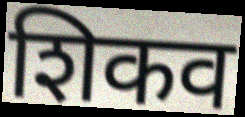
शिकव